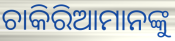
ଚାକିରିଆମାନଙ୍କୁ